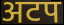
अटप